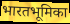
भारतभूमिका